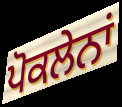
ਪੋਕਲੇਨਾਂ